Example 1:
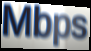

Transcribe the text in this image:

Mbps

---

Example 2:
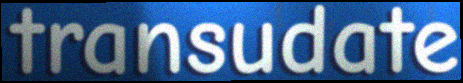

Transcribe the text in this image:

transudate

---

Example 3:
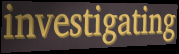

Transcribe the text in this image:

investigating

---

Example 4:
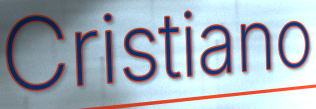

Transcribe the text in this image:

Cristiano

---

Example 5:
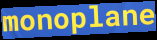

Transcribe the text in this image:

monoplane